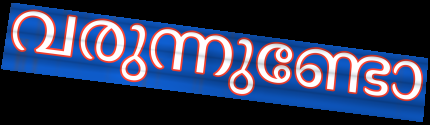
വരുന്നുണ്ടോ